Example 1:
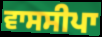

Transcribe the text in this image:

ਵਾਸਸੀਪਾ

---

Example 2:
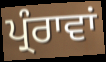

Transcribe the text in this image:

ਪ੍ਰੰਰਾਵਾਂ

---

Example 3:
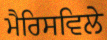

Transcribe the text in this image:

ਮੈਰਿਸਵਿਲੇ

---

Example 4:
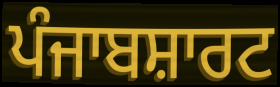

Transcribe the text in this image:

ਪੰਜਾਬਸ਼ਾਰਟ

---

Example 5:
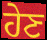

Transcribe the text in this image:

ਹੇਣ